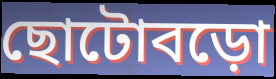
ছোটোবড়ো